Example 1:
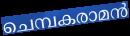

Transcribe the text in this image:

ചെമ്പകരാമൻ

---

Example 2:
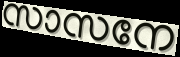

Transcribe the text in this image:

സാസനേ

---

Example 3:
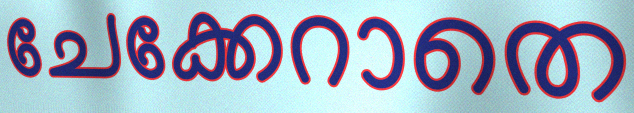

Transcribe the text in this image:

ചേക്കേറാതെ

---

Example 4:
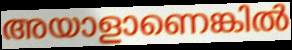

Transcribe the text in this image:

അയാളാണെങ്കിൽ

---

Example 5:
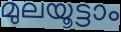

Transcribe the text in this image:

മുലയൂട്ടാം